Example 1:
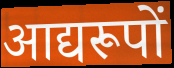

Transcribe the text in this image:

आद्यरूपों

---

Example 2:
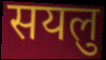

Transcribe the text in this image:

सयलु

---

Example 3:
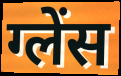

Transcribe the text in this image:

ग्लेंस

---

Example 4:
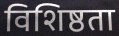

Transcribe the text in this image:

विशिष्ठता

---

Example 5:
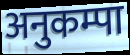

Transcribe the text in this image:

अनुकम्पा